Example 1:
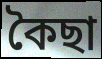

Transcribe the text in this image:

কৈছা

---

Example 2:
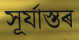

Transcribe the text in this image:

সূৰ্যাস্তৰ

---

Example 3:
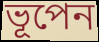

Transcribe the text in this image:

ভূপেন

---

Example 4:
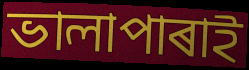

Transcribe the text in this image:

ভালাপাৰাই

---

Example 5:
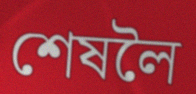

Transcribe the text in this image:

শেষলৈ